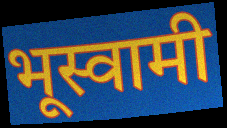
भूस्वामी